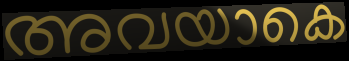
അവയാകെ